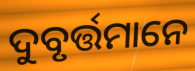
ଦୁବୃର୍ତ୍ତମାନେ